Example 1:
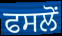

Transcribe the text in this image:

ਫਸਲੋਂ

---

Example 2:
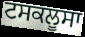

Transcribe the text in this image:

ਟਸਕਲੂਸਾ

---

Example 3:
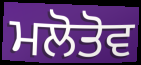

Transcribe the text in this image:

ਮਲੋਤੋਵ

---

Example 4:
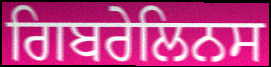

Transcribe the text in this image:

ਗਿਬਰੇਲਿਨਸ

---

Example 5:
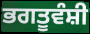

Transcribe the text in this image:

ਭਗਤੂਵੰਸ਼ੀ